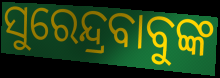
ସୁରେନ୍ଦ୍ରବାବୁଙ୍କ